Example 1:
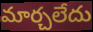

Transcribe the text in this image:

మార్చలేదు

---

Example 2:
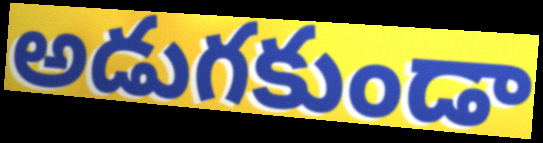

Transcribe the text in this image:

అడుగకుండా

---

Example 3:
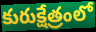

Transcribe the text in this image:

కురుక్షేత్రంలో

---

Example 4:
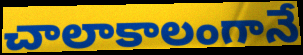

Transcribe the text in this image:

చాలాకాలంగానే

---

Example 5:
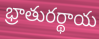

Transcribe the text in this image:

భ్రాతురర్థాయ